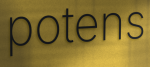
potens